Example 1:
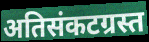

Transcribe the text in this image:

अतिसंकटग्रस्त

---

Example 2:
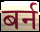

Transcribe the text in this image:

बर्न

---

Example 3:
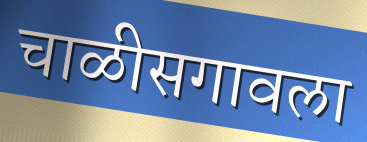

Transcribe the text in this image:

चाळीसगावला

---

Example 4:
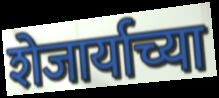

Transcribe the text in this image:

शेजार्याच्या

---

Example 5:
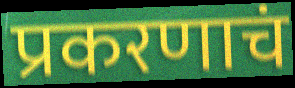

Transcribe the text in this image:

प्रकरणाचं